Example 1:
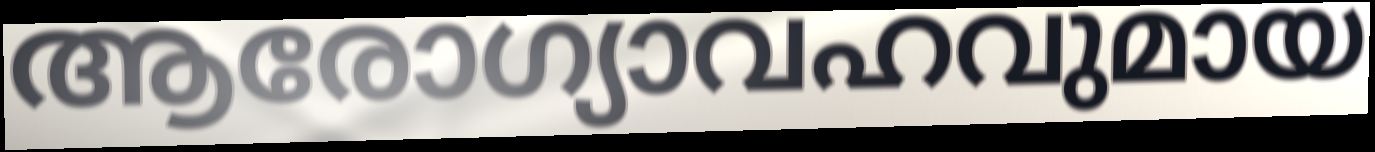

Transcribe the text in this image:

ആരോഗ്യാവഹവുമായ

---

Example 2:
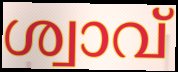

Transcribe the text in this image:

ശ്വാവ്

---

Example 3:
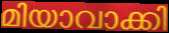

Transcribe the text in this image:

മിയാവാക്കി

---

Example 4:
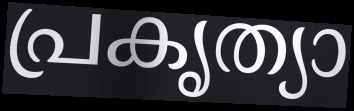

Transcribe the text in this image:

പ്രകൃത്യാ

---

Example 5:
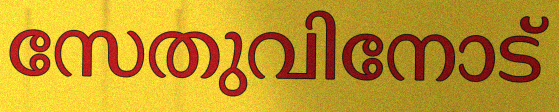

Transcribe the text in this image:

സേതുവിനോട്